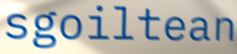
sgoiltean